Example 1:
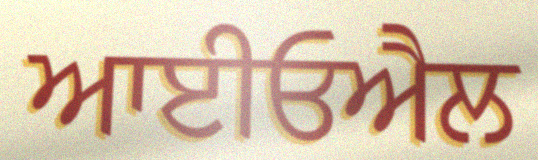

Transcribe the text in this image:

ਆਈਓਐਲ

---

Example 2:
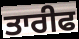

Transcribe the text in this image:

ਤਾਰੀਫ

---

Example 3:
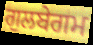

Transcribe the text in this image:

ਗੁਲਬੇਗਮ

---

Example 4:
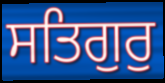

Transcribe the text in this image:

ਸਤਿਗੁਰੁ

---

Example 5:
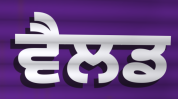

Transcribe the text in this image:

ਵੈਲਡ